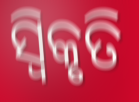
ସ୍ୱିକୃତି